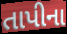
તાપીના